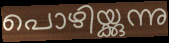
പൊഴിയ്ക്കുന്നു